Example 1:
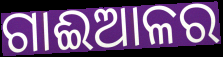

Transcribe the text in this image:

ଗାଈଆଳର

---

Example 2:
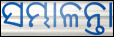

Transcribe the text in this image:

ସମ୍ଭାଳନ୍ତା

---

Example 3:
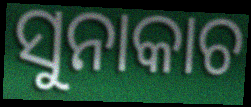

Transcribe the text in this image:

ସୁନାକାଚ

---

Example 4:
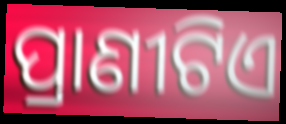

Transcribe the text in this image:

ପ୍ରାଣୀଟିଏ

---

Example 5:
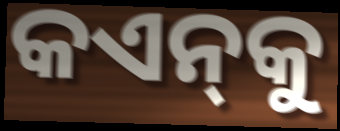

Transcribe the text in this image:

କଏନ୍‌କୁ